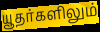
யூதர்களிலும்